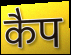
कैप